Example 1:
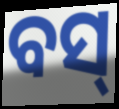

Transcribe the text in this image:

ବସ୍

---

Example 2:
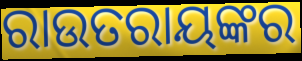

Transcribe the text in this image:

ରାଉତରାୟଙ୍କର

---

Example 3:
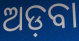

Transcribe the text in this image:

ଅଡ଼ବା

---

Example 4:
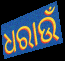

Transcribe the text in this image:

ଧରାଉଁ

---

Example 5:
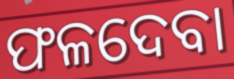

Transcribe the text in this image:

ଫଳଦେବା